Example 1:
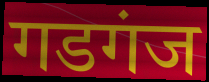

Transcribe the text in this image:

गडगंज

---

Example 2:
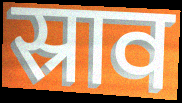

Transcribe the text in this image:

स्राव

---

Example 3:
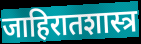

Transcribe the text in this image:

जाहिरातशास्त्र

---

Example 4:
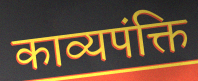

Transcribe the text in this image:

काव्यपंक्ति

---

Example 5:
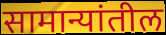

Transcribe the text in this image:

सामान्यांतील